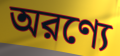
অরণ্যে